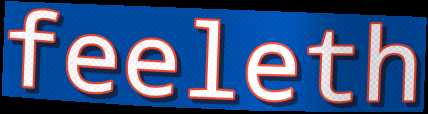
feeleth